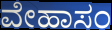
ವೇಹಾಸಂ